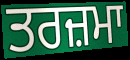
ਤਰਜ਼ਮਾ